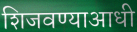
शिजवण्याआधी